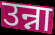
उन्ना